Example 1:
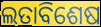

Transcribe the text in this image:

ଲତାବିଶେଷ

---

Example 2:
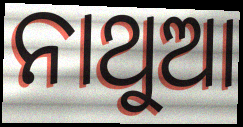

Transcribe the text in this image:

ନାଥୁଆ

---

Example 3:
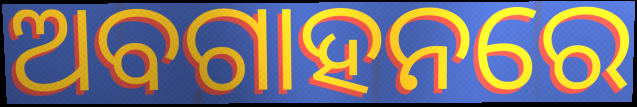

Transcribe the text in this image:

ଅବଗାହନରେ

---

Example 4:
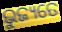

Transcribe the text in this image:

ଭୁଜ୍ୟତେ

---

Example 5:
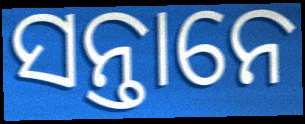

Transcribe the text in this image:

ସନ୍ତାନେ